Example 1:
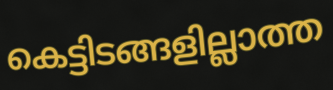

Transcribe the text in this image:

കെട്ടിടങ്ങളില്ലാത്ത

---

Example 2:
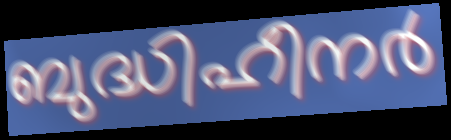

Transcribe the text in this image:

ബുദ്ധിഹീനർ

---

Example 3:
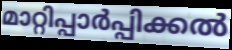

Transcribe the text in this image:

മാറ്റിപ്പാർപ്പിക്കൽ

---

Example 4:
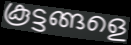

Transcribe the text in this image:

കൂട്ടങ്ങളെ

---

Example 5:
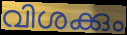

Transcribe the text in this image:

വിശക്കും